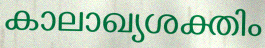
കാലാഖ്യശക്തിം